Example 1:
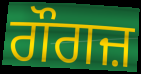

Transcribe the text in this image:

ਗੌਗਜ਼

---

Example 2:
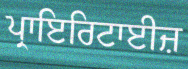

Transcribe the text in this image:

ਪ੍ਰਾਇਰਿਟਾਈਜ਼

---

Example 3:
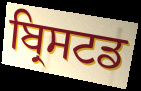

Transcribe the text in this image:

ਬ੍ਰਿਸਟਡ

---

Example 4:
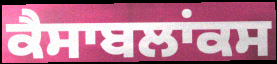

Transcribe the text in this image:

ਕੈਸਾਬਲਾਂਕਸ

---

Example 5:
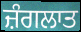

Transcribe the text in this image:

ਜ਼ੰਗਲਾਤ